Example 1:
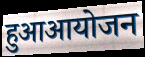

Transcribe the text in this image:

हुआआयोजन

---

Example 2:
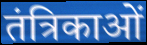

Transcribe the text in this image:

तंत्रिकाओं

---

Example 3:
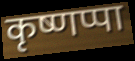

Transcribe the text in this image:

कृष्‍णप्‍पा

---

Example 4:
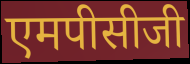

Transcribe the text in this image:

एमपीसीजी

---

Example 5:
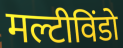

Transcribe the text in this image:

मल्टीविंडो